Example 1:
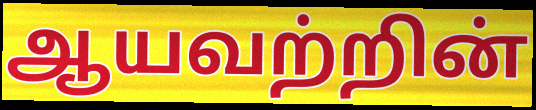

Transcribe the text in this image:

ஆயவற்றின்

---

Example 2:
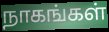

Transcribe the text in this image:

நாகங்கள்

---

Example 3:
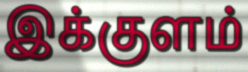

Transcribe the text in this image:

இக்குளம்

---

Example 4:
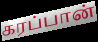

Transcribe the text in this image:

கரப்பான்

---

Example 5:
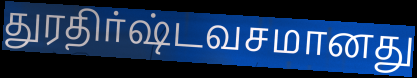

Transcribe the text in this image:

துரதிர்ஷ்டவசமானது